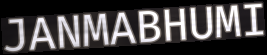
JANMABHUMI